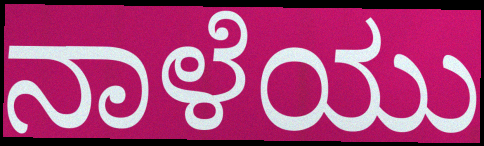
ನಾಳೆಯು